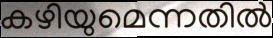
കഴിയുമെന്നതിൽ